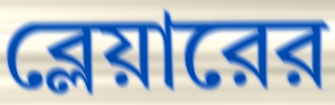
ব্লেয়ারের